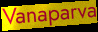
Vanaparva